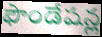
ఫౌండేషన్ల